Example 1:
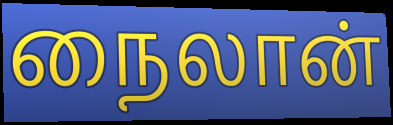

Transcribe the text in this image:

நைலான்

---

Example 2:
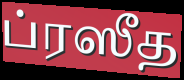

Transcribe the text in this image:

ப்ரஸீத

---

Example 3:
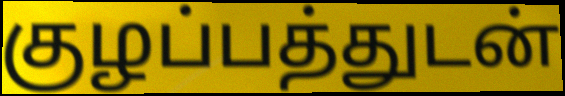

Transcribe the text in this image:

குழப்பத்துடன்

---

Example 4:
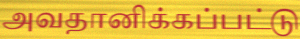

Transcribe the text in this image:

அவதானிக்கப்பட்டு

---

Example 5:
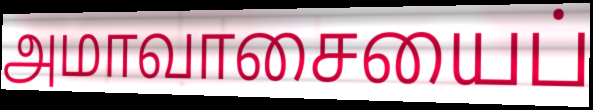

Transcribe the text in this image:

அமாவாசையைப்